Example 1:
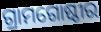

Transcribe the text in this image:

ଗ୍ରାମଗୋଷ୍ଠୀର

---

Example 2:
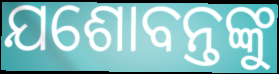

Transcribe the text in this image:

ଯଶୋବନ୍ତଙ୍କୁ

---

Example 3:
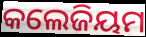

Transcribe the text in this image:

କଲେଜିୟମ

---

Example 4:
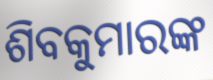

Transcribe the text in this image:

ଶିବକୁମାରଙ୍କ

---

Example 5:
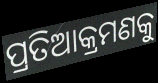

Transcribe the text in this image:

ପ୍ରତିଆକ୍ରମଣକୁ